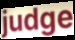
judge